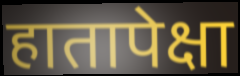
हातापेक्षा